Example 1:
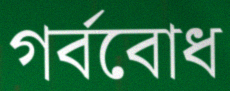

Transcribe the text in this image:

গর্ববোধ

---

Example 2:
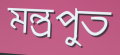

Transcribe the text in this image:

মন্ত্রপুত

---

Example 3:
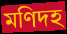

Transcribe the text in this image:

মণিদহ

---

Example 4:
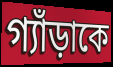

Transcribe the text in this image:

গ্যাঁড়াকে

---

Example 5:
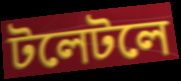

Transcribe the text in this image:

টলেটলে